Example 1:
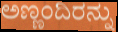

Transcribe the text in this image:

ಅಣ್ಣಂದಿರನ್ನು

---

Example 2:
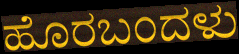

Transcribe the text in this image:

ಹೊರಬಂದಳು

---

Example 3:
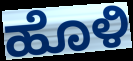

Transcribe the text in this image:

ಹೊಳಿ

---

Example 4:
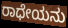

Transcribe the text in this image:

ರಾಧೇಯನು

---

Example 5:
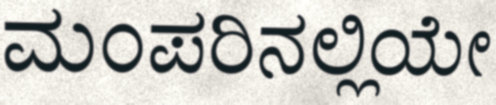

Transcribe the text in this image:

ಮಂಪರಿನಲ್ಲಿಯೇ